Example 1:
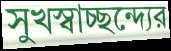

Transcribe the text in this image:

সুখস্বাচ্ছন্দ্যের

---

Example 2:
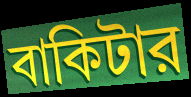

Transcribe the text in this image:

বাকিটার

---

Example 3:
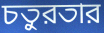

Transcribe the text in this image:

চতুরতার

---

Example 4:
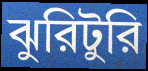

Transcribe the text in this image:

ঝুরিটুরি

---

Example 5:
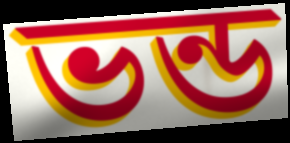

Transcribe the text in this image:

ভন্ড